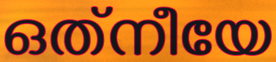
ഒത്‌നീയേ